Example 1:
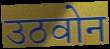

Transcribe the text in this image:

उठवोन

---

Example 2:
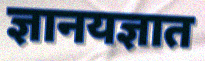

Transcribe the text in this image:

ज्ञानयज्ञात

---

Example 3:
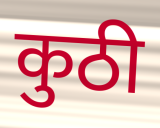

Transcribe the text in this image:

कुठी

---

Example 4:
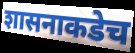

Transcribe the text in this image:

शासनाकडेच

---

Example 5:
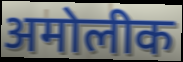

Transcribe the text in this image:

अमोलीक